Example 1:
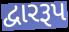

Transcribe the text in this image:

દ્વારરૂપ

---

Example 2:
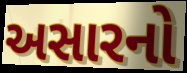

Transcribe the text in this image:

અસારનો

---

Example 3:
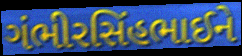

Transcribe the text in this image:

ગંભીરસિંહભાઈને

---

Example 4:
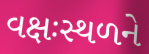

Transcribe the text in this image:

વક્ષઃસ્થળને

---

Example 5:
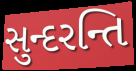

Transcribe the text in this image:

સુન્દરન્તિ